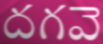
దగవె